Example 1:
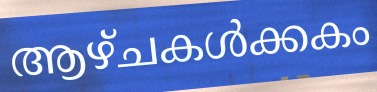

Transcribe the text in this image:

ആഴ്ചകൾക്കകം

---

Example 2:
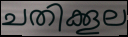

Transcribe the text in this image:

ചതിക്കൂല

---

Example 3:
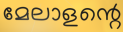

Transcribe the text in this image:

മേലാളന്റെ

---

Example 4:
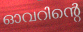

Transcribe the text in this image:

ഓവറിന്റെ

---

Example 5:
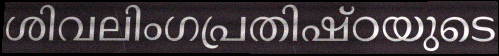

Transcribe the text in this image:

ശിവലിംഗപ്രതിഷ്ഠയുടെ